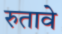
रुतावे